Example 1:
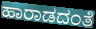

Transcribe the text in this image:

ಹಾರಾಡದಂತೆ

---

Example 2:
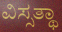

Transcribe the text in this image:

ವಿಸ್ಸತ್ಥಾ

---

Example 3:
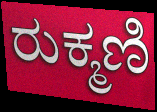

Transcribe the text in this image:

ರುಕ್ಮಣಿ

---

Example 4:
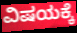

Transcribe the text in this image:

ವಿಷಯಕ್ಕೆ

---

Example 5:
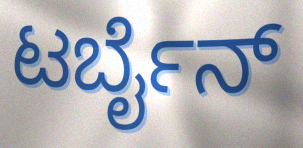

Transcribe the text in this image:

ಟರ್ಬೈನ್